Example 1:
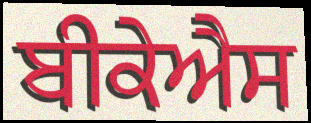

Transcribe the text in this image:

ਬੀਕੇਐਸ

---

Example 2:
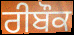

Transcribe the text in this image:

ਰੀਬੌਕ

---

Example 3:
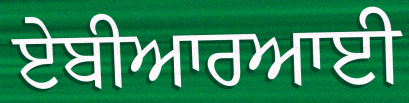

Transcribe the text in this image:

ਏਬੀਆਰਆਈ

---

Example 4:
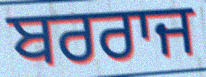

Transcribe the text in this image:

ਬਰਰਾਜ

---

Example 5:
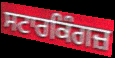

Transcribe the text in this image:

ਸਟਾਰਕਿੰਗਜ਼